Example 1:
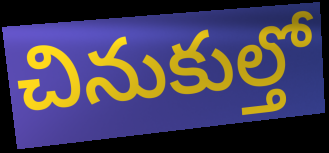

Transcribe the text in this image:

చినుకుల్తో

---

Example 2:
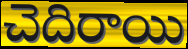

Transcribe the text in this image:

చెదిరాయి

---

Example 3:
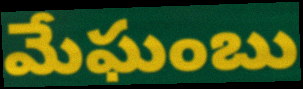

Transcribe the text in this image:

మేఘంబు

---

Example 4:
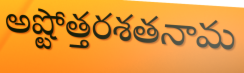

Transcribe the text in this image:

అష్టోత్తరశతనామ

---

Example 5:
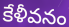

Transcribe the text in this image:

కేళీవనం